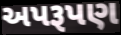
અપરૂપણ